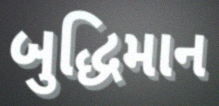
બુદ્ધિમાન